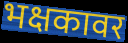
भक्षकावर